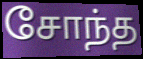
சோந்த